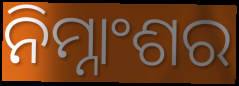
ନିମ୍ନାଂଶର